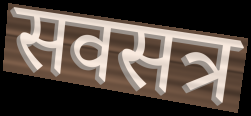
सवसत्र